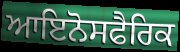
ਆਇਨੋਸਫੈਰਿਕ